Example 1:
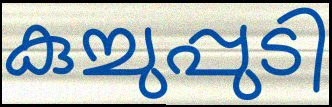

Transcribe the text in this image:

കുച്ചുപ്പുടി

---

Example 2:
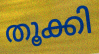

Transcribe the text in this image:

തൂക്കി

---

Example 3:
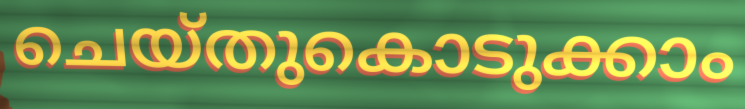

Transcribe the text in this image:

ചെയ്തുകൊടുക്കാം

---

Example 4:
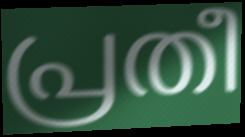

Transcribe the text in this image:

പ്രതീ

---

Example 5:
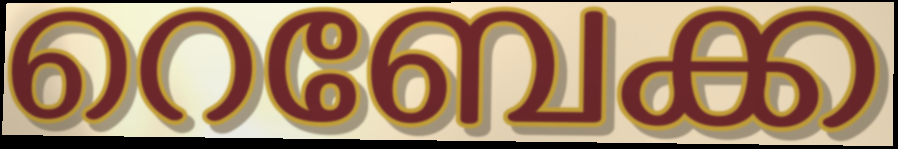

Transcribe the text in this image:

റെബേക്ക